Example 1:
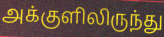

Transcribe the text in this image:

அக்குளிலிருந்து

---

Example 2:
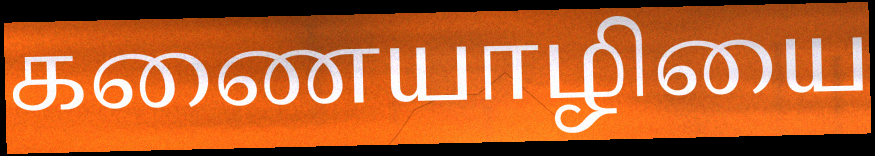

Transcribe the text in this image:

கணையாழியை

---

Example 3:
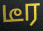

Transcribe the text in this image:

டீர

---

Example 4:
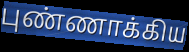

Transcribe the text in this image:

புண்ணாக்கிய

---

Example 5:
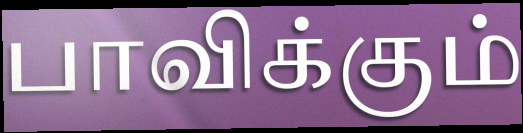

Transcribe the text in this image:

பாவிக்கும்